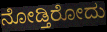
ನೋಡ್ತಿರೋದು